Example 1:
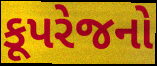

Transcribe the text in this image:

કૂપરેજનો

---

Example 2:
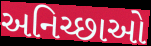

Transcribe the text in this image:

અનિચ્છાઓ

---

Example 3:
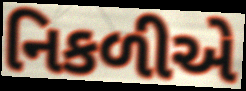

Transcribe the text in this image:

નિકળીએ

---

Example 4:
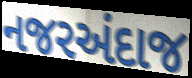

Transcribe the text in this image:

નજરઅંદાજ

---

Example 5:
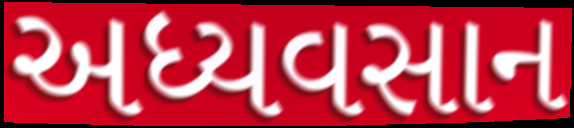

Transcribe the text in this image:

અધ્યવસાન